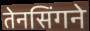
तेनसिंगने